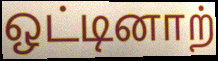
ஒட்டினாற்